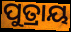
ପୁତ୍ରାୟ